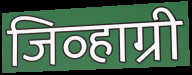
जिव्हाग्री